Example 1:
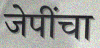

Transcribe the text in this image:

जेपींचा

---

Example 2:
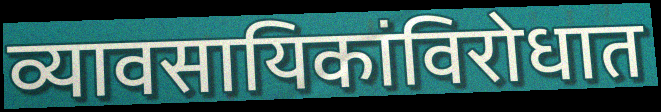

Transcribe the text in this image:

व्यावसायिकांविरोधात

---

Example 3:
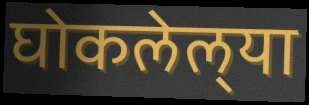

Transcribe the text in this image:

घोकलेल्या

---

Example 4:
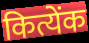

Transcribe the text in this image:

कित्येंक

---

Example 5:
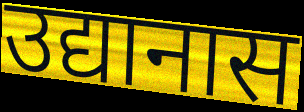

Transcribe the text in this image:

उद्यानास